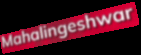
Mahalingeshwar